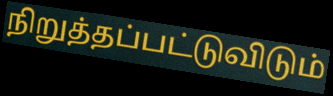
நிறுத்தப்பட்டுவிடும்